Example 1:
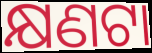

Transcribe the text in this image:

କ୍ଷଣଟା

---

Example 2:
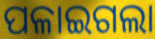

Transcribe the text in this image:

ପଳାଇଗଲା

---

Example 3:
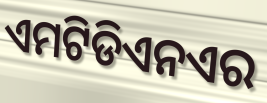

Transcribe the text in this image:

ଏମଟିଡିଏନଏର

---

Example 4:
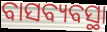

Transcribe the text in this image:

ବାସବ୍ୟବସ୍ଥା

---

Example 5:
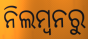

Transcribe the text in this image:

ନିଲମ୍ବନରୁ